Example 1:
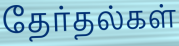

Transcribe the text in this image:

தேர்தல்கள்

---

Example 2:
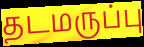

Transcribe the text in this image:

தடமருப்பு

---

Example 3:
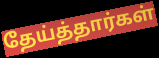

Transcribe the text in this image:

தேய்த்தார்கள்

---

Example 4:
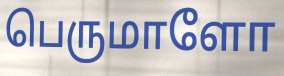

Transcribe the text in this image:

பெருமாளோ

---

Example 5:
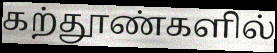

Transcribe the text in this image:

கற்தூண்களில்